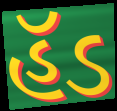
હૅડ